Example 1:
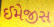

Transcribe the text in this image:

ઈમેજીસ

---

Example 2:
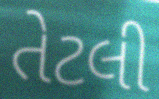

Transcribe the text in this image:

તેટલી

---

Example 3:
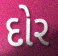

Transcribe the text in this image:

દોર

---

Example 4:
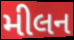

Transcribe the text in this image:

મીલન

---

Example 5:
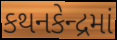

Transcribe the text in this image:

કથનકેન્દ્રમાં